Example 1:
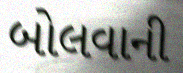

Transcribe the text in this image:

બોલવાની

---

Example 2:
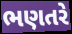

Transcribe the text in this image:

ભણતરે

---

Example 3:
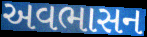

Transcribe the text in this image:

અવભાસન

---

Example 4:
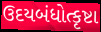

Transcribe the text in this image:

ઉદયબંધોત્કૃષ્ટા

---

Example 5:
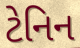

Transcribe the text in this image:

ટેનિન